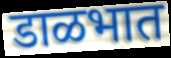
डाळभात